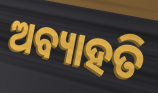
ଅବ୍ୟାହତି